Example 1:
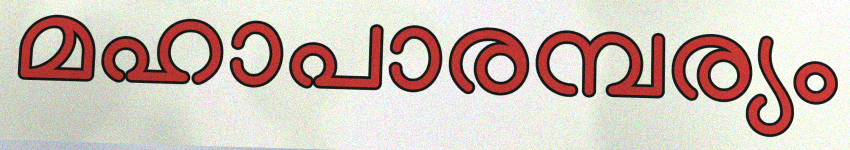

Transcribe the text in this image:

മഹാപാരമ്പര്യം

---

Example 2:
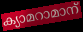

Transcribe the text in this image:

ക്യാമറാമാന്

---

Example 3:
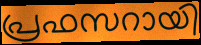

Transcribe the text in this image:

പ്രഫസറായി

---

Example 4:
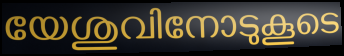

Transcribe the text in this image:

യേശുവിനോടുകൂടെ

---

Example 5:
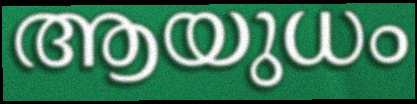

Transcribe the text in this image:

ആയുധം